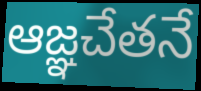
ఆజ్ఞచేతనే